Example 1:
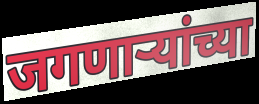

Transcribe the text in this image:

जगणाऱ्यांच्या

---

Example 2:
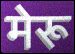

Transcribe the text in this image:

मेरू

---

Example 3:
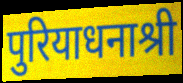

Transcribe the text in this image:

पुरियाधनाश्री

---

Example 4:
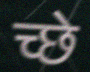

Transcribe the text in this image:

च्छे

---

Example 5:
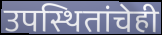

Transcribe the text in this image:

उपस्थितांचेही